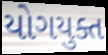
યોગયુક્ત